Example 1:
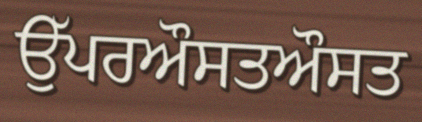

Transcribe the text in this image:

ਉੱਪਰਔਸਤਔਸਤ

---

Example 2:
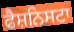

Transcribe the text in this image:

ਫੈਸ਼ਨਿਸਟਾ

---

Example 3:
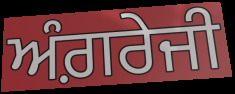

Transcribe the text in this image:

ਅੰਗ਼ਰੇਜੀ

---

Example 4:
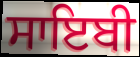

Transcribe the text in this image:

ਸਾਇਬੀ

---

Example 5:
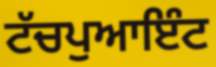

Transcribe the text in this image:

ਟੱਚਪੁਆਇੰਟ